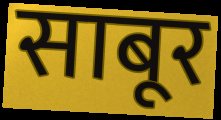
साबूर